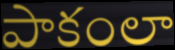
పాకంలా